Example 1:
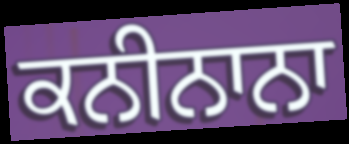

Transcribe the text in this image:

ਕਨੀਨਾਨਾ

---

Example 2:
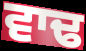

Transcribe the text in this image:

ਵਾਢ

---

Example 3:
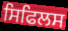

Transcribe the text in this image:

ਸਿਫਿਲਸ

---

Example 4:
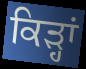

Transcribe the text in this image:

ਕਿੜ੍ਹਾਂ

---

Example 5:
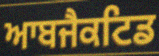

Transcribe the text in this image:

ਆਬਜੈਕਟਿਡ